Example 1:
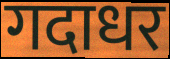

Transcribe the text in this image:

गदाधर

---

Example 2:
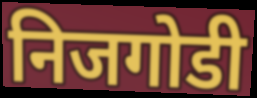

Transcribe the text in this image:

निजगोडी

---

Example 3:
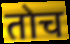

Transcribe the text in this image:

तोच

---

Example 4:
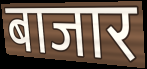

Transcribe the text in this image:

बाजार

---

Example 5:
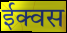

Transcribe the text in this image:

ईक्‍वस